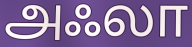
அஃலா